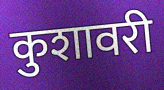
कुशावरी